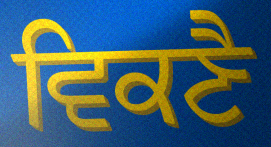
ਵਿਕਣੈ